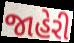
જાહેરી